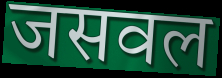
जसवल